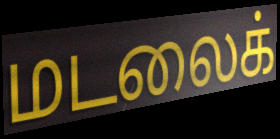
மடலைக்